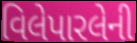
વિલેપારલેની